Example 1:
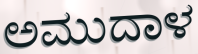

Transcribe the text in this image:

ಅಮುದಾಳ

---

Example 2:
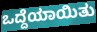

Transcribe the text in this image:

ಒದ್ದೆಯಾಯಿತು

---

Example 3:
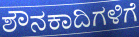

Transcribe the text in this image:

ಶೌನಕಾದಿಗಳಿಗೆ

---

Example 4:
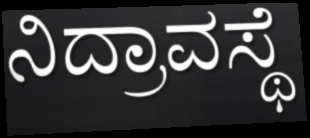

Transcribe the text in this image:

ನಿದ್ರಾವಸ್ಥೆ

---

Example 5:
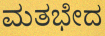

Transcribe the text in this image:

ಮತಭೇದ